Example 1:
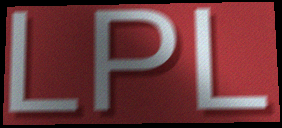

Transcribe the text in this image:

LPL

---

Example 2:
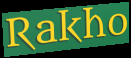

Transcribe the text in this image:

Rakho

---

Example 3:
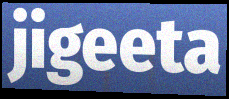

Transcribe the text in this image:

jigeeta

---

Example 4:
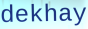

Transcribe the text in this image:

dekhay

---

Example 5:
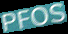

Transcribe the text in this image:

PFOS